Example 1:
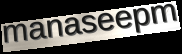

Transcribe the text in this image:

manaseepm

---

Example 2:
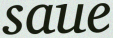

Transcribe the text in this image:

saue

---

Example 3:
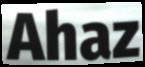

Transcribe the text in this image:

Ahaz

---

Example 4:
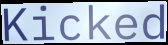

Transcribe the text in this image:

Kicked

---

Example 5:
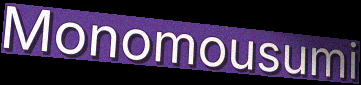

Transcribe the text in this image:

Monomousumi